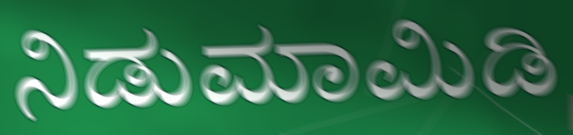
ನಿಡುಮಾಮಿಡಿ